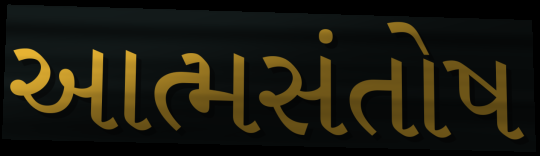
આત્મસંતોષ